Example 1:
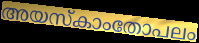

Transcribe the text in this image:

അയസ്കാംതോപലം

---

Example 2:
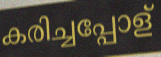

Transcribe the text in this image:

കരിച്ചപ്പോള്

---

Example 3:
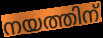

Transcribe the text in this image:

നയത്തിന്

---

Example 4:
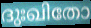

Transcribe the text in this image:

ദുഃഖിതോ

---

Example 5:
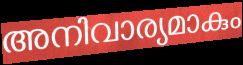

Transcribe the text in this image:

അനിവാര്യമാകും